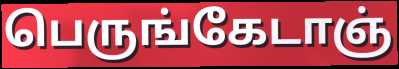
பெருங்கேடாஞ்